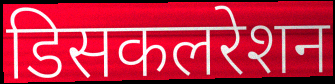
डिसकलरेशन